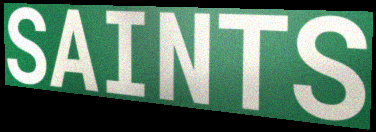
SAINTS